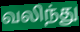
வலிந்து